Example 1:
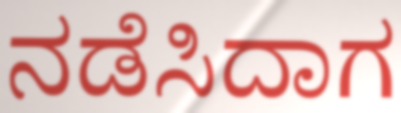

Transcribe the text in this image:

ನಡೆಸಿದಾಗ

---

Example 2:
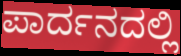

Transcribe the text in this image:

ಪಾರ್ದನದಲ್ಲಿ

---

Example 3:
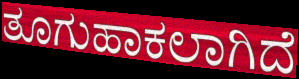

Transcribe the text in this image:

ತೂಗುಹಾಕಲಾಗಿದೆ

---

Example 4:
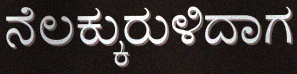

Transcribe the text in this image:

ನೆಲಕ್ಕುರುಳಿದಾಗ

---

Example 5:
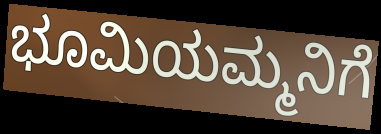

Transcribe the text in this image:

ಭೂಮಿಯಮ್ಮನಿಗೆ